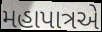
મહાપાત્રએ